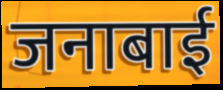
जनाबाई